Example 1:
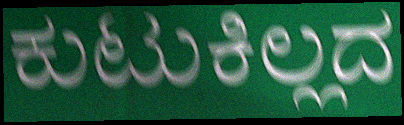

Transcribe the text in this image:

ಕುಟುಕಿಲ್ಲದ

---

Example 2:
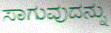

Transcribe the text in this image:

ಸಾಗುವುದನ್ನು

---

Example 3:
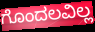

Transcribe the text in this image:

ಗೊಂದಲವಿಲ್ಲ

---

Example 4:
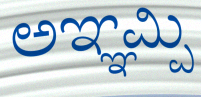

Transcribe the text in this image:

ಅಞ್ಞಮ್ಪಿ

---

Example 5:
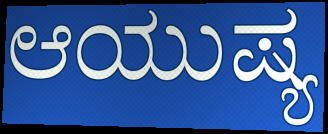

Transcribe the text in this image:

ಆಯುಷ್ಯ